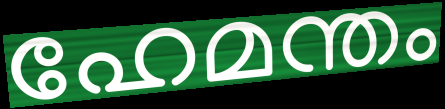
ഹേമന്തം